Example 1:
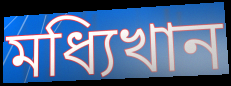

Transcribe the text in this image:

মধ্যিখান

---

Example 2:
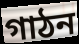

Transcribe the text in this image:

গাঠন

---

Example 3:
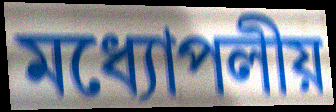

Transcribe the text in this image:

মধ্যোপলীয়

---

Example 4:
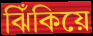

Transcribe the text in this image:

ঝিঁকিয়ে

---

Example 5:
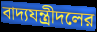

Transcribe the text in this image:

বাদ্যযন্ত্রীদলের